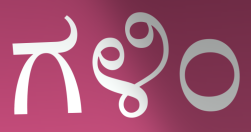
ಗಳಿಂ